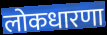
लोकधारणा